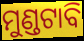
ମୁଣ୍ଡଟାବି